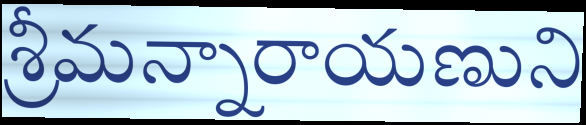
శ్రీమన్నారాయణుని